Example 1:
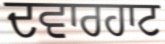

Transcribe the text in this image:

ਦਵਾਰਹਾਟ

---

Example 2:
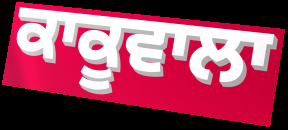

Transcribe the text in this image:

ਕਾਕੂਵਾਲਾ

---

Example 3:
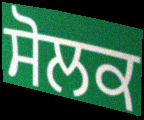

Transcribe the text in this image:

ਸੋਲਕ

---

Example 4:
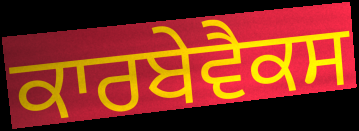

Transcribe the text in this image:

ਕਾਰਬੇਵੈਕਸ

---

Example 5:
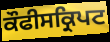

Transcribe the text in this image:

ਕੌਫੀਸਕ੍ਰਿਪਟ